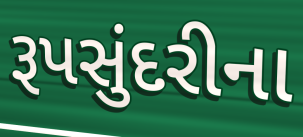
રૂપસુંદરીના